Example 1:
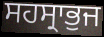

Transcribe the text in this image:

ਸਹਸ੍ਰਾਭੁਜ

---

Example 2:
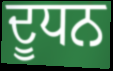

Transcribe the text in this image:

ਦੂਧਨ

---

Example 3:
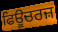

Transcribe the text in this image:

ਫਿਊਚਰਜ਼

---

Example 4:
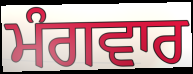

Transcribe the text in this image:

ਮੰਗਵਾਰ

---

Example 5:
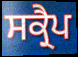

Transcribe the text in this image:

ਸਕ੍ਰੈਪ